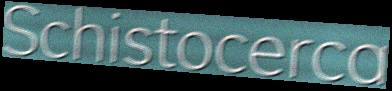
Schistocerca